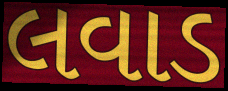
લવાડ